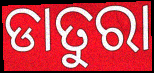
ଡାତୁରା